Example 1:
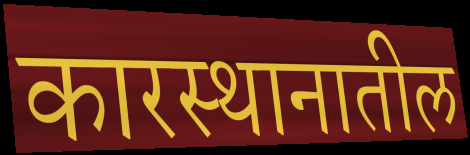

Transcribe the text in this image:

कारस्थानातील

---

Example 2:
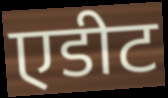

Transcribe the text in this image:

एडीट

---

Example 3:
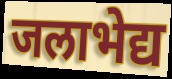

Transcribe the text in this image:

जलाभेद्य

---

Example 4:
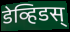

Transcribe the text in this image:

डेव्हिडस्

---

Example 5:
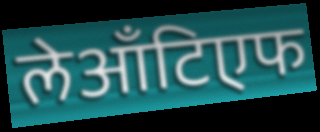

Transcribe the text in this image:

लेआँटिएफ